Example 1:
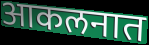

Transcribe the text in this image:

आकलनात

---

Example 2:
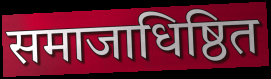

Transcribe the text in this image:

समाजाधिष्ठित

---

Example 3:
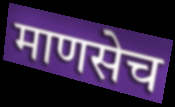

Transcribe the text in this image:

माणसेच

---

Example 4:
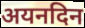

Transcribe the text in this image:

अयनदिन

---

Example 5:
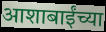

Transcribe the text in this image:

आशाबाईंच्या